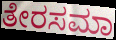
ತೇರಸಮಾ